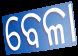
ବେଳା